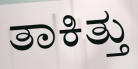
ತಾಕಿತ್ತು